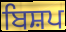
ਬਿਸ਼ਪ